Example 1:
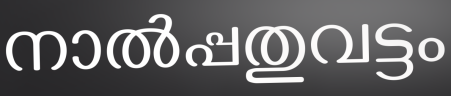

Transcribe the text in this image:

നാൽപ്പതുവട്ടം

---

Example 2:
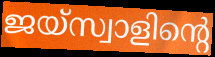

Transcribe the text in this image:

ജയ്സ്വാളിന്റെ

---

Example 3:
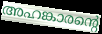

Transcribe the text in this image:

അഹങ്കാരന്റെ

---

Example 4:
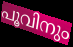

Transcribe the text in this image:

പൂവിനും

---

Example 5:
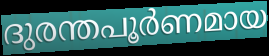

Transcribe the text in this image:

ദുരന്തപൂർണമായ